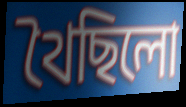
থৈছিলো